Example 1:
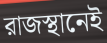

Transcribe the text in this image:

রাজস্থানেই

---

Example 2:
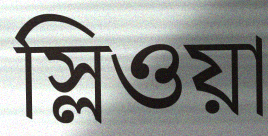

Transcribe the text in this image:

স্লিওয়া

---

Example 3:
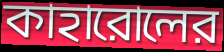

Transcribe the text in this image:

কাহারোলের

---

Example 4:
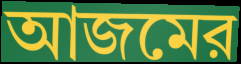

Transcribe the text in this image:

আজমের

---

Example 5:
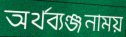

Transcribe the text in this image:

অর্থব্যঞ্জনাময়